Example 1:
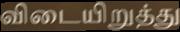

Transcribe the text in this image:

விடையிறுத்து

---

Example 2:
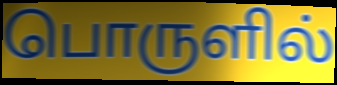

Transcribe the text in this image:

பொருளில்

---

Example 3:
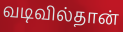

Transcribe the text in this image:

வடிவில்தான்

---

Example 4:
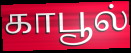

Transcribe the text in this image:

காபூல்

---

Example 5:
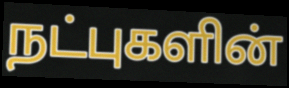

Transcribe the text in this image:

நட்புகளின்